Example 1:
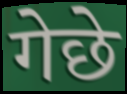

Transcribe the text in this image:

गेछे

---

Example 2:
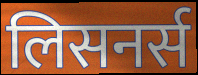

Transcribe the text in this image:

लिसनर्स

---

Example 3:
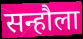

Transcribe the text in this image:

सन्हौला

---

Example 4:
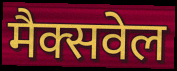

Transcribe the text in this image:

मैक्‍सवेल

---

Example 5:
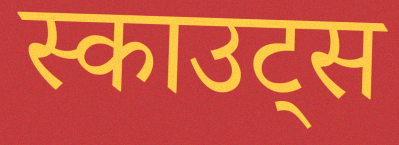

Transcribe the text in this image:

स्काउट्स